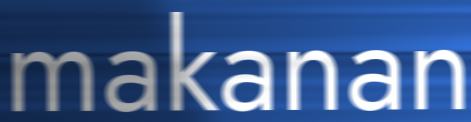
makanan